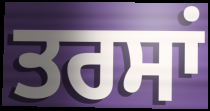
ਤਰਸਾਂ